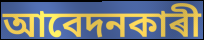
আবেদনকাৰী